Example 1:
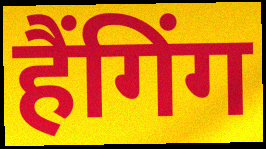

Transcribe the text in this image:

हैंगिंग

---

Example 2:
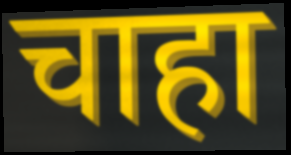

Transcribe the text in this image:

चाहा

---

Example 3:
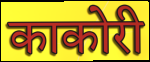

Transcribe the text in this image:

काकोरी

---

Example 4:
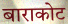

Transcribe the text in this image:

बाराकोट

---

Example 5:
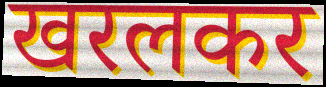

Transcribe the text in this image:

खरलकर